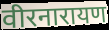
वीरनारायण